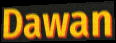
Dawan